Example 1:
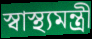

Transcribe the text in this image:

স্বাস্থ্যমন্ত্রী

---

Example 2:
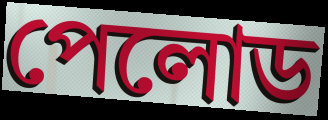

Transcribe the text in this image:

পেলোড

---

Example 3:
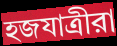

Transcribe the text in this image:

হজযাত্রীরা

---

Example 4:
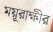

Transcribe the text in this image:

ময়ূরাক্ষীর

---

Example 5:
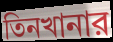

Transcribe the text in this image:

তিনখানার